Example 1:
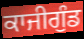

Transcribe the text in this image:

ਕਾਜੀਗੁੰਡ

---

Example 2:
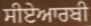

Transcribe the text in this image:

ਸੀਏਆਰਬੀ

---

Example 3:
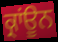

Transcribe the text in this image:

ਕ੍ਰਾਂਊਨ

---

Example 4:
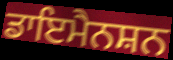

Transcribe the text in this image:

ਡਾਇਮੈਨਸ਼ਨ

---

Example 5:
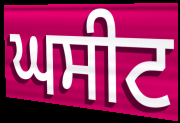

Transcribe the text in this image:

ਘਸੀਟ